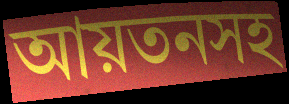
আয়তনসহ